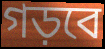
গড়বে